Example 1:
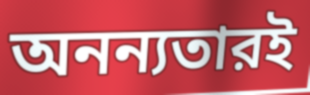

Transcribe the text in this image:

অনন্যতারই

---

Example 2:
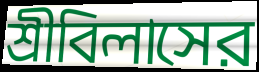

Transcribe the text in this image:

শ্রীবিলাসের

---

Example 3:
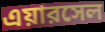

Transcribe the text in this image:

এয়ারসেল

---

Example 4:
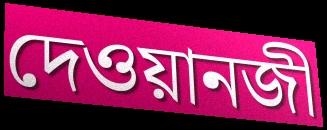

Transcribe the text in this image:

দেওয়ানজী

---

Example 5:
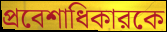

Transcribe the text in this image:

প্রবেশাধিকারকে